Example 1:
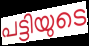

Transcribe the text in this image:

പട്ടിയുടെ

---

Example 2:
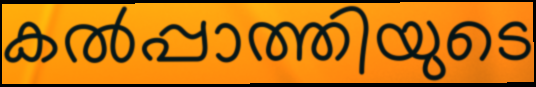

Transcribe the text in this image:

കൽപ്പാത്തിയുടെ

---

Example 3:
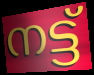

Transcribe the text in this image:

നട്ട്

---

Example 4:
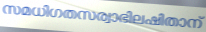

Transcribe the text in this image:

സമധിഗതസര്വാഭിലഷിതാന്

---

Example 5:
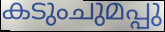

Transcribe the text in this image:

കടുംചുമപ്പു